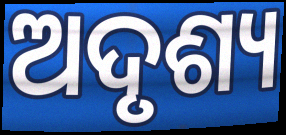
ଅଦୃଶ୍ୟ